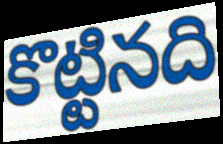
కొట్టినది